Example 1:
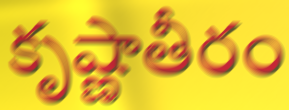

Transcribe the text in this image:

కృష్ణాతీరం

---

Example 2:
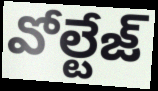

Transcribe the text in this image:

వోల్టేజ్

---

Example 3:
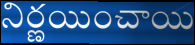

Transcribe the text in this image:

నిర్ణయించాయి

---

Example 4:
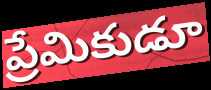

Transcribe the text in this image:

ప్రేమికుడూ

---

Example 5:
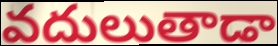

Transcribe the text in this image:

వదులుతాడా